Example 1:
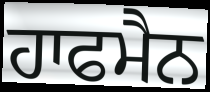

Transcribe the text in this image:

ਹਾਫਮੈਨ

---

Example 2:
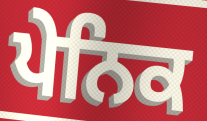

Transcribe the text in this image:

ਪੇਨਿਕ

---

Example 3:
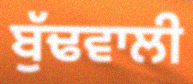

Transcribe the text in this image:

ਬੁੱਢਵਾਲੀ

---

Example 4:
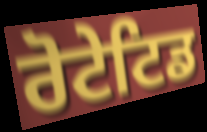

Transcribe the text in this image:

ਰੋਟੇਟਿਡ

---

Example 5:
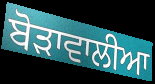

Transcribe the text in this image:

ਬੋੜਾਵਾਲੀਆ